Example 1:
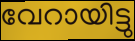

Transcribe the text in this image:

വേറായിട്ടു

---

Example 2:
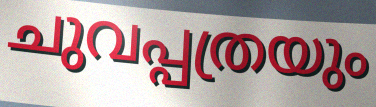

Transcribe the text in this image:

ചുവപ്പത്രയും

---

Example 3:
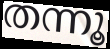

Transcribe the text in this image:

തന്നൂ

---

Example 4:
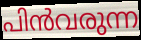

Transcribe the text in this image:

പിൻവരുന്ന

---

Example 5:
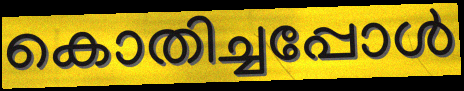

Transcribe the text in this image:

കൊതിച്ചപ്പോൾ